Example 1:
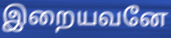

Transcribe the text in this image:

இறையவனே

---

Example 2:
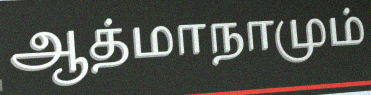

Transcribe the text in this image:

ஆத்மாநாமும்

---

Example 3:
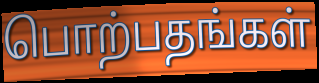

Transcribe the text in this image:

பொற்பதங்கள்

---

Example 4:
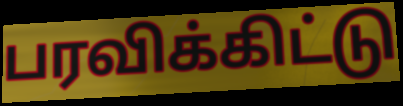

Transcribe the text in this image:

பரவிக்கிட்டு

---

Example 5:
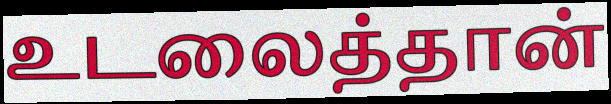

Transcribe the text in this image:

உடலைத்தான்